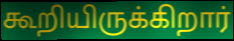
கூறியிருக்கிறார்